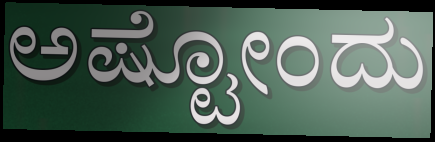
ಅಷ್ಟೋಂದು